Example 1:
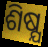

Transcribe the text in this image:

ଶିଷ୍ଯ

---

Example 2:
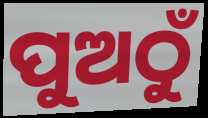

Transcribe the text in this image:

ପୁଅଠୁଁ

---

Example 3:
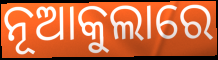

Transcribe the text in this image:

ନୂଆକୁଲାରେ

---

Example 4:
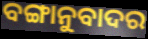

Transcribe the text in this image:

ବଙ୍ଗାନୁବାଦର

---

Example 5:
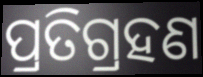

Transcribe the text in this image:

ପ୍ରତିଗ୍ରହଣ